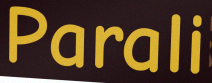
Parali